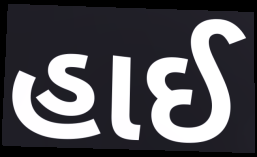
હાઈ